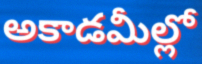
అకాడమీల్లో